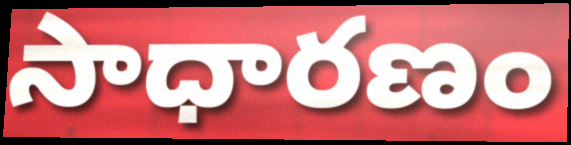
సాధారణం